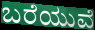
ಬರೆಯುವೆ